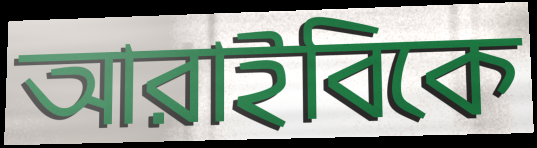
আরাইবিকে